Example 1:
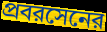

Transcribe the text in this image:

প্রবরসেনের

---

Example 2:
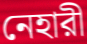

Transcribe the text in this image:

নেহারী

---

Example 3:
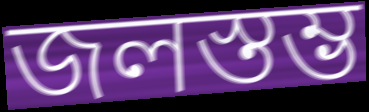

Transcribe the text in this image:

জলস্তম্ভ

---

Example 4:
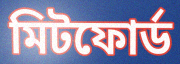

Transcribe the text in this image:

মিটফোর্ড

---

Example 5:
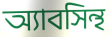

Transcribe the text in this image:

অ্যাবসিন্থ